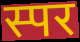
स्पर